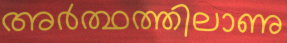
അർത്ഥത്തിലാണു